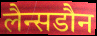
लैन्सडौन